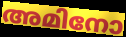
അമിനോ